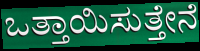
ಒತ್ತಾಯಿಸುತ್ತೇನೆ